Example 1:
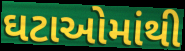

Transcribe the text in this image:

ઘટાઓમાંથી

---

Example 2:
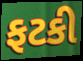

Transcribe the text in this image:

ફટકી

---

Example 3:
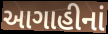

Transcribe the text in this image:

આગાહીનાં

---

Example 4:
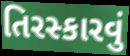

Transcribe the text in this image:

તિરસ્કારવું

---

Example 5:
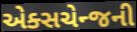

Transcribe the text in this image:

એક્સચેન્જની